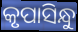
କୃପାସିନ୍ଧୁ